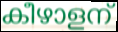
കീഴാളന്